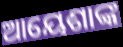
ଆୟେଶାଙ୍କ